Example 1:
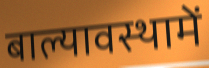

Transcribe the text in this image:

बाल्यावस्थामें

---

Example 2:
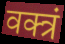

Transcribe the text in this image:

वक्त्रं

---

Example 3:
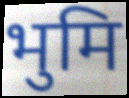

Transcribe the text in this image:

भुमि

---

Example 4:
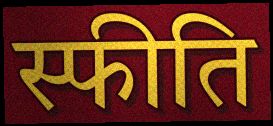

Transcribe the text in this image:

स्‍फीति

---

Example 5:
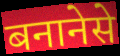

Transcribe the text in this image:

बनानेसे